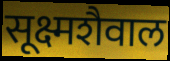
सूक्ष्मशैवाल